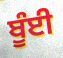
ਬੂੰਈ